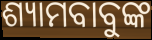
ଶ୍ୟାମବାବୁଙ୍କ